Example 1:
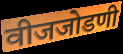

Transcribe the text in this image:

वीजजोडणी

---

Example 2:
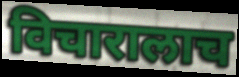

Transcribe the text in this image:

विचारालाच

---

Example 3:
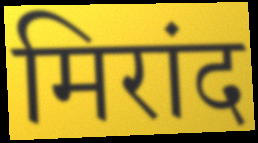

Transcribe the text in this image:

मिरांद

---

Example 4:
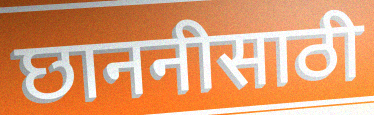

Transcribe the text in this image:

छाननीसाठी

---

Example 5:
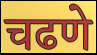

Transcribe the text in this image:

चढणे